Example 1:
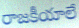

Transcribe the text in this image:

రాజకీయాలే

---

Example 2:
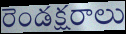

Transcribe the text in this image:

రెండక్షరాలు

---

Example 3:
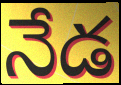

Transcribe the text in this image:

నేడ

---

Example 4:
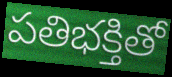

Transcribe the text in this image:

పతిభక్తితో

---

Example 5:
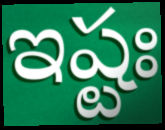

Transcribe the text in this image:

ఇష్టః